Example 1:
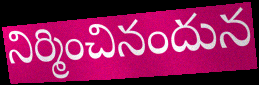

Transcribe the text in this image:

నిర్మించినందున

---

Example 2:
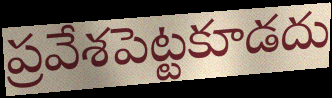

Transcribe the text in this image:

ప్రవేశపెట్టకూడదు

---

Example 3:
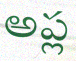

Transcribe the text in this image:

అప్ల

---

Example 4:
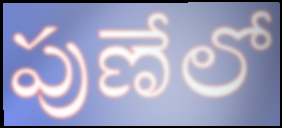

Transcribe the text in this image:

పుణేలో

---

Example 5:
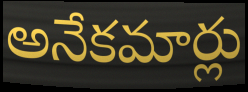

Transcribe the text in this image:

అనేకమార్లు